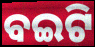
ବଇଟି